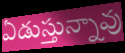
ఏడుస్తున్నావు